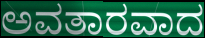
ಅವತಾರವಾದ